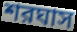
শরঘাস